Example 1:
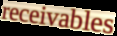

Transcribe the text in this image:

receivables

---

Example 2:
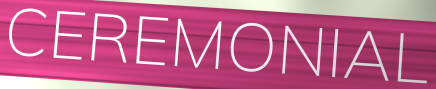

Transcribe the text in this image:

CEREMONIAL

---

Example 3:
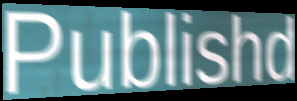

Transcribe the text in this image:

Publishd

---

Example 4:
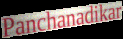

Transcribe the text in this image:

Panchanadikar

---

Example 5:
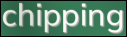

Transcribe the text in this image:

chipping